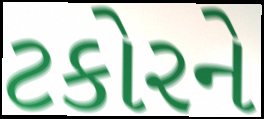
ટકોરને